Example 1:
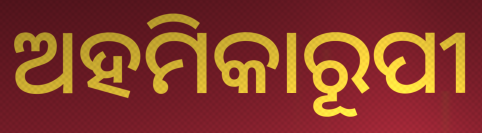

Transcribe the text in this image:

ଅହମିକାରୂପୀ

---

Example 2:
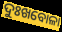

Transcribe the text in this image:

ଦୁଃଖବୋଳା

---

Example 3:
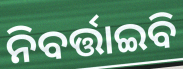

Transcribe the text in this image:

ନିବର୍ତ୍ତାଇବି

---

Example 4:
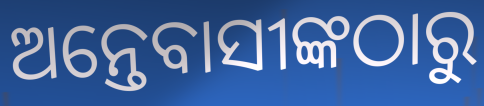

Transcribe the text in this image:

ଅନ୍ତେବାସୀଙ୍କଠାରୁ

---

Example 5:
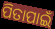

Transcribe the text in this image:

ପିତାପାଇଁ